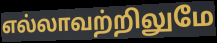
எல்லாவற்றிலுமே